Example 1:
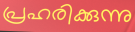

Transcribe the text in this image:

പ്രഹരിക്കുന്നു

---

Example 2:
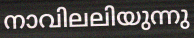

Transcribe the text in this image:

നാവിലലിയുന്നു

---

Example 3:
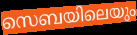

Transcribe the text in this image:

സെബയിലെയും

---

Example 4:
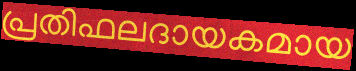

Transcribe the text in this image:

പ്രതിഫലദായകമായ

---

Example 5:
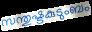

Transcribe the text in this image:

സന്തുഷ്ടകുടുംബം